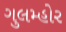
ગુલમ્હોર